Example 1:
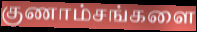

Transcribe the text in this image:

குணாம்சங்களை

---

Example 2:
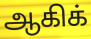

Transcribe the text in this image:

ஆகிக்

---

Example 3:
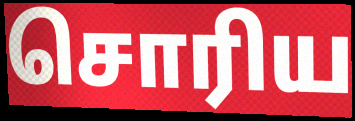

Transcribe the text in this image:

சொரிய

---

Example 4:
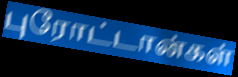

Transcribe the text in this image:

புரோட்டான்கள்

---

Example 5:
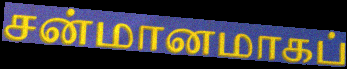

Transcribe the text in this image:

சன்மானமாகப்